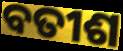
ବତୀଶ